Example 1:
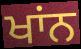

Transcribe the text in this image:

ਖਾਂਨ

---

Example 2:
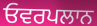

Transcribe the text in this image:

ਓਵਰਪਲਾਨ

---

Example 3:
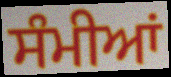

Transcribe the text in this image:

ਸੰਮੀਆਂ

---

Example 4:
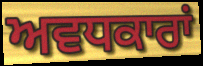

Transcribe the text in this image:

ਅਵਧਕਾਰਾਂ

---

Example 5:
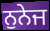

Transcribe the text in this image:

ਨੁਨੇਜ